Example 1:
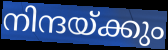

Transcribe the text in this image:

നിന്ദയ്ക്കും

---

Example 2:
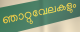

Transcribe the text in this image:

ഞാറ്റുവേലകളും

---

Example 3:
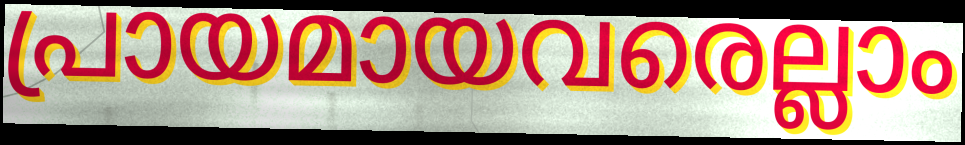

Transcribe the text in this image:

പ്രായമായവരെല്ലാം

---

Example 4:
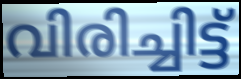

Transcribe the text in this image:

വിരിച്ചിട്ട്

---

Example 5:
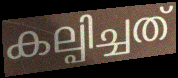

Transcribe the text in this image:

കല്പിച്ചത്